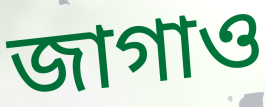
জাগাও